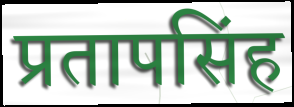
प्रतापसिंह